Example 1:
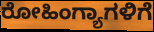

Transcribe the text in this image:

ರೋಹಿಂಗ್ಯಾಗಳಿಗೆ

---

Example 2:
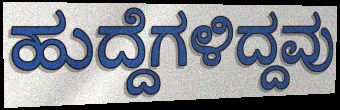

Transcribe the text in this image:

ಹುದ್ದೆಗಳಿದ್ದವು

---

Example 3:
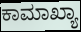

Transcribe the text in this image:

ಕಾಮಾಖ್ಯಾ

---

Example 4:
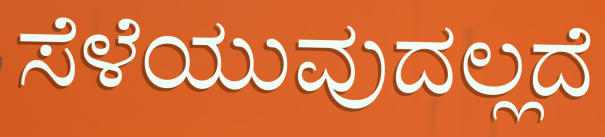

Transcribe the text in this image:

ಸೆಳೆಯುವುದಲ್ಲದೆ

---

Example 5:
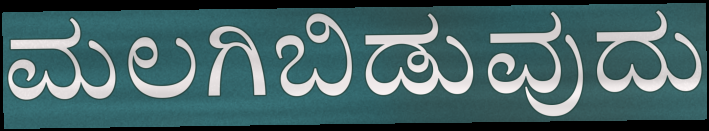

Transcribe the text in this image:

ಮಲಗಿಬಿಡುವುದು